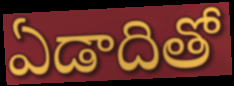
ఏడాదితో